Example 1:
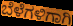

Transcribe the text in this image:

ಬೆಳೆಗಳಿಗಾಗಿ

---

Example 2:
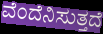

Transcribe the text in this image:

ವೆಂದೆನಿಸುತ್ತದೆ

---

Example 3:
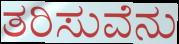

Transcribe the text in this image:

ತರಿಸುವೆನು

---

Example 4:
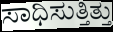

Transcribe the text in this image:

ಸಾಧಿಸುತ್ತಿತ್ತು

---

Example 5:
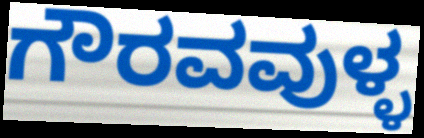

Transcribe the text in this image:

ಗೌರವವುಳ್ಳ